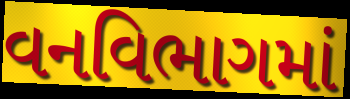
વનવિભાગમાં